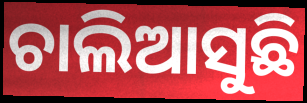
ଚାଲିଆସୁଛି